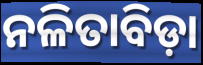
ନଳିତାବିଡ଼ା